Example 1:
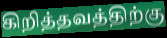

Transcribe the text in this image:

கிறித்தவத்திற்கு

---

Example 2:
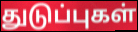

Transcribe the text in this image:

துடுப்புகள்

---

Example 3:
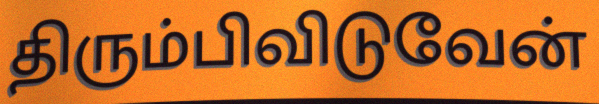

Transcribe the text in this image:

திரும்பிவிடுவேன்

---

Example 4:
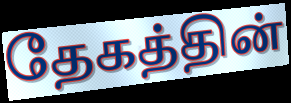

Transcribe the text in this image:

தேகத்தின்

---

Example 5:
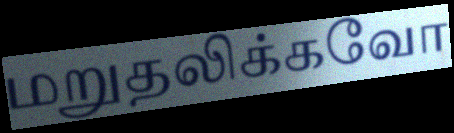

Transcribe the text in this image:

மறுதலிக்கவோ